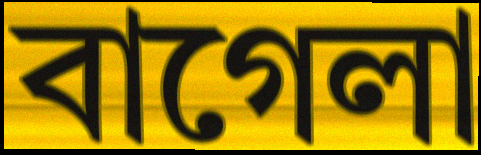
বাগেলা